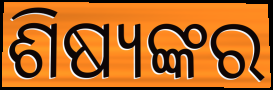
ଶିଷ୍ୟଙ୍କର